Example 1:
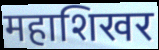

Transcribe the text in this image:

महाशिखर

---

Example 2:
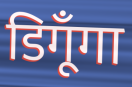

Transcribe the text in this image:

डिगूँगा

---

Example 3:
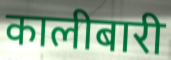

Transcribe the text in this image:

कालीबारी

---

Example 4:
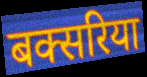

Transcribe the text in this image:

बक्सरिया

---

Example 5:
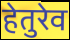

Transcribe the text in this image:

हेतुरेव